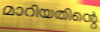
മാറിയതിന്റെ